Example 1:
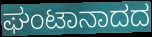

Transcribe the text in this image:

ಘಂಟಾನಾದದ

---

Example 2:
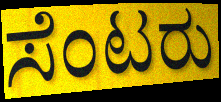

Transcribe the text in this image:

ಸೆಂಟರು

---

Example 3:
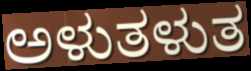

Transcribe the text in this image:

ಅಳುತಳುತ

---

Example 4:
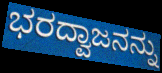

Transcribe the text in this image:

ಭರದ್ವಾಜನನ್ನು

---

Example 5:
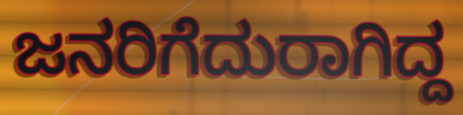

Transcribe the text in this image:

ಜನರಿಗೆದುರಾಗಿದ್ದ